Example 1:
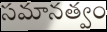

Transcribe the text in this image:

సమానత్వం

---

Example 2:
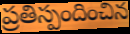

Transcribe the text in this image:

ప్రతిస్పందించిన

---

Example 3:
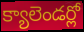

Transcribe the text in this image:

క్యాలెండర్లో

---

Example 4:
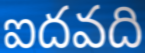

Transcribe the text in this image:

ఐదవది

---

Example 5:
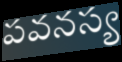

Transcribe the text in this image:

పవనస్య